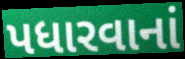
પધારવાનાં